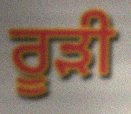
ਰੂੜੀ